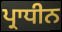
ਪ੍ਰਾਧੀਨ